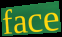
face